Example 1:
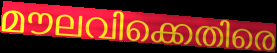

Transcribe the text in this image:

മൗലവിക്കെതിരെ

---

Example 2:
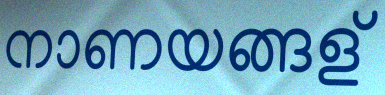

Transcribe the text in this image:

നാണയങ്ങള്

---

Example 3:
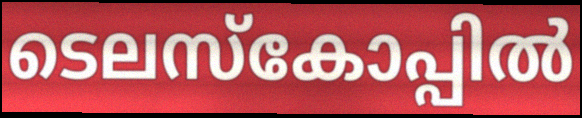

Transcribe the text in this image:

ടെലസ്കോപ്പിൽ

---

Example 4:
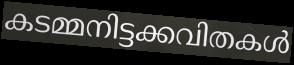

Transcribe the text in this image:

കടമ്മനിട്ടക്കവിതകൾ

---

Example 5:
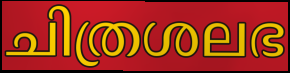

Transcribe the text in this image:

ചിത്രശലഭ